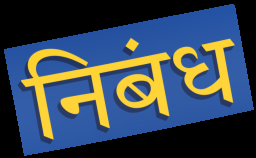
निबंध